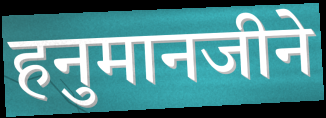
हनुमानजीने